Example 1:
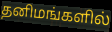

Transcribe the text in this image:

தனிமங்களில்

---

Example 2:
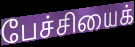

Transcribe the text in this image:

பேச்சியைக்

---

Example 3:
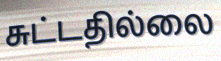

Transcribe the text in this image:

சுட்டதில்லை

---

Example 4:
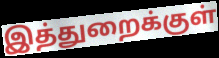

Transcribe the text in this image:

இத்துறைக்குள்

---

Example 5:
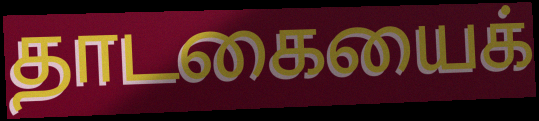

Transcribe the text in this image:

தாடகையைக்